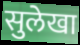
सुलेखा